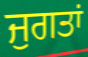
ਜੁਗਤਾਂ